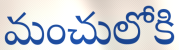
మంచులోకి